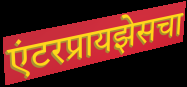
एंटरप्रायझेसचा